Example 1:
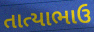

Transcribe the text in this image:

તાત્યાભાઉ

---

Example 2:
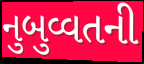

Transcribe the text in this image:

નુબુવ્વતની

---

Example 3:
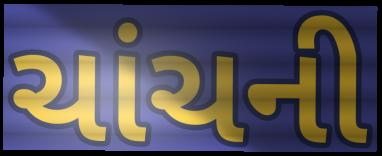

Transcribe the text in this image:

ચાંચની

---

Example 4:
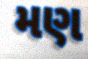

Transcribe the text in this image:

મણ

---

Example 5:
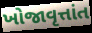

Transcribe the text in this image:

ખોજાવૃત્તાંત